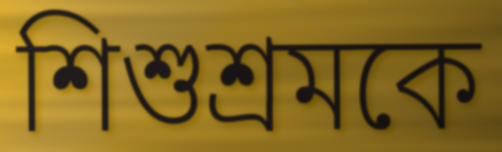
শিশুশ্রমকে